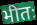
भीतः